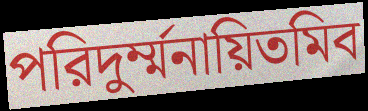
পরিদুর্ম্মনায়িতমিব